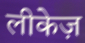
लीकेज़